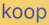
koop